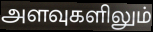
அளவுகளிலும்